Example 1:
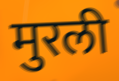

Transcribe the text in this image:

मुरली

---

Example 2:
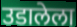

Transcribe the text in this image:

उडालेला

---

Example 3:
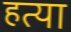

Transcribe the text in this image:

हत्या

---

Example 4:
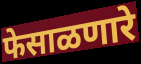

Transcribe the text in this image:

फेसाळणारे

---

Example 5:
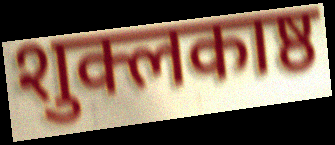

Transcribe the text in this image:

शुक्लकाष्ठ